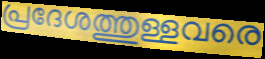
പ്രദേശത്തുള്ളവരെ